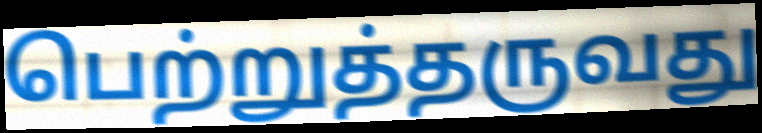
பெற்றுத்தருவது